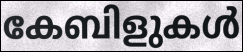
കേബിളുകൾ